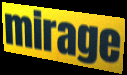
mirage